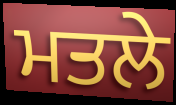
ਮਤਲੇ